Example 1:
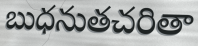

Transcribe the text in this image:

బుధనుతచరితా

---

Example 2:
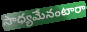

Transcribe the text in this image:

సాధ్యమేనంటారా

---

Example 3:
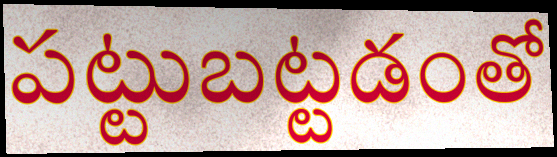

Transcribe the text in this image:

పట్టుబట్టడంతో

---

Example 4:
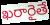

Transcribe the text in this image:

ఖరారైతే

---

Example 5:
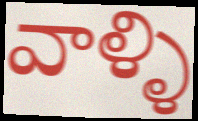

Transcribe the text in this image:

వాళ్ళి